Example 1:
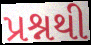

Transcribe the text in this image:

પ્રશ્નથી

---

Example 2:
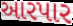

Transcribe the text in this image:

આરપાર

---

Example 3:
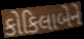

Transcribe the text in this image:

કોકિલાબેને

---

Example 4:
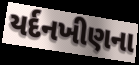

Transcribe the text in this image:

યર્દનખીણના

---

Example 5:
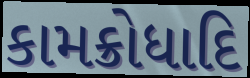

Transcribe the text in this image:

કામક્રોધાદિ